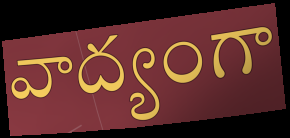
వాద్యంగా